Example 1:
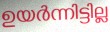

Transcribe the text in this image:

ഉയർന്നിട്ടില്ല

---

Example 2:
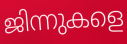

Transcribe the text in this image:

ജിന്നുകളെ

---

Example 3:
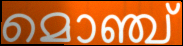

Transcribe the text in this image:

മൊഞ്ച്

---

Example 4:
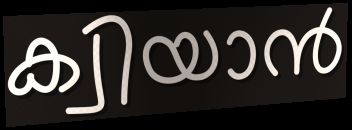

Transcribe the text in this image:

ക്വിയാൻ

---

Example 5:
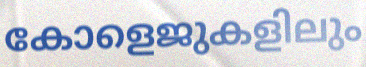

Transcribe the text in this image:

കോളെജുകളിലും